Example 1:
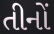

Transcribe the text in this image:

તીનોં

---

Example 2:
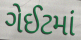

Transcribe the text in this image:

ગેઈટમાં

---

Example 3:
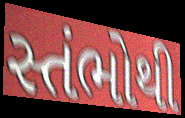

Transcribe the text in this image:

સ્તંભોથી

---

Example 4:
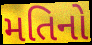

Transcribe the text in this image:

મતિનો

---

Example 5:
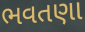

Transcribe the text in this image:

ભવતણા